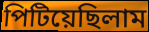
পিটিয়েছিলাম